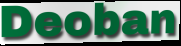
Deoban